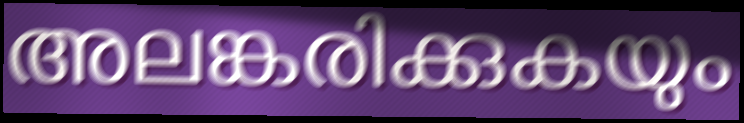
അലങ്കരിക്കുകയും